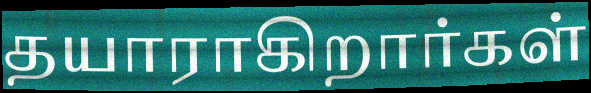
தயாராகிறார்கள்